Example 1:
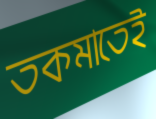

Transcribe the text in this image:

তকমাতেই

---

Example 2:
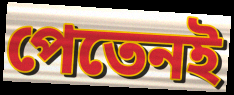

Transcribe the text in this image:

পেতেনই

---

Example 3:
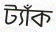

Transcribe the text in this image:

ট্যাঁক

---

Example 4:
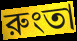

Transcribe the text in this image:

রুংতা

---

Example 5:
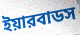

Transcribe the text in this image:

ইয়ারবাডস